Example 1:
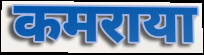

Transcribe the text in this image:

कमराया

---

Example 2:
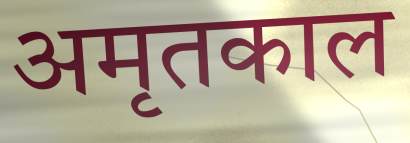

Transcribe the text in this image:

अमृतकाल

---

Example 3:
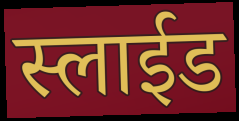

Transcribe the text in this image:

स्लाईड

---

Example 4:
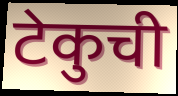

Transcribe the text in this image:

टेकुची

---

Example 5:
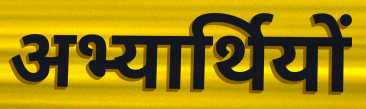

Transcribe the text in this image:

अभ्यार्थियों